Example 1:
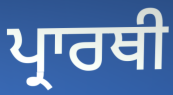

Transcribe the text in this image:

ਪ੍ਰਾਰਥੀ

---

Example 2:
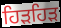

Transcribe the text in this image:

ਹਿੜਹਿੜ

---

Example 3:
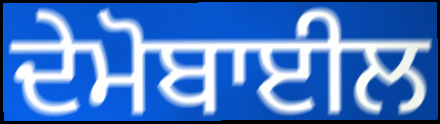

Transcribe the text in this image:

ਦੇਮੋਬਾਈਲ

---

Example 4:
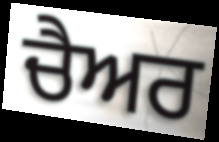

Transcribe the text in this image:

ਚੈਅਰ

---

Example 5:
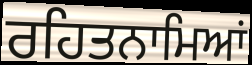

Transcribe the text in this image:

ਰਹਿਤਨਾਮਿਆਂ